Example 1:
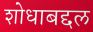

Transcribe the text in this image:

शोधाबद्दल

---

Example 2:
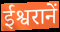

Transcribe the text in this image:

ईश्वरानें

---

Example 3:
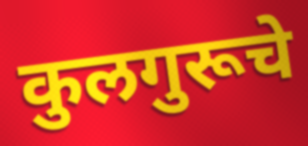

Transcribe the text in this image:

कुलगुरूचे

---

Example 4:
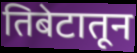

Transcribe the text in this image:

तिबेटातून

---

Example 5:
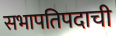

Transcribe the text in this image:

सभापतिपदाची